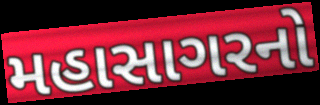
મહાસાગરનો